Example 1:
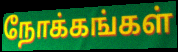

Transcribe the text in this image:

நோக்கங்கள்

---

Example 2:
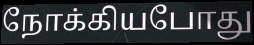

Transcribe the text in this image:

நோக்கியபோது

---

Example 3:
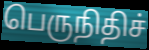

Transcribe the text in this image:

பெருநிதிச்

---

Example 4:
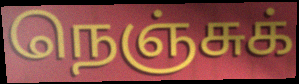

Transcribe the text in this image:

நெஞ்சுக்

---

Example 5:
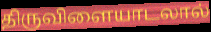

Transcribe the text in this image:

திருவிளையாடலால்